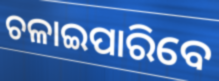
ଚଳାଇପାରିବେ